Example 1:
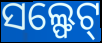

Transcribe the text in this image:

ସଲ୍ଫେଟ୍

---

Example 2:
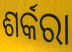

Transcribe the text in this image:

ଶର୍କରା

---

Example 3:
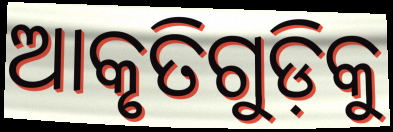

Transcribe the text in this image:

ଆକୃତିଗୁଡ଼ିକୁ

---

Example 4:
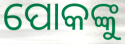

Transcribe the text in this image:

ପୋକଙ୍କୁ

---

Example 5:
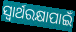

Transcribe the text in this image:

ସ୍ୱାର୍ଥରକ୍ଷାପାଇଁ